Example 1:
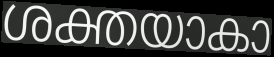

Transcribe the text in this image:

ശക്തയാകാ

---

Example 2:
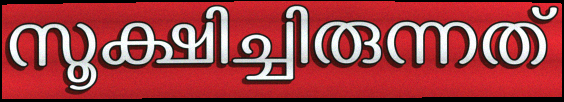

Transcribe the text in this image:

സൂക്ഷിച്ചിരുന്നത്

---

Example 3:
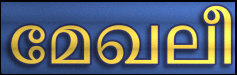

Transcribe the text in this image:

മേഖലീ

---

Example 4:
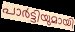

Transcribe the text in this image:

പാർട്ടിയുമായി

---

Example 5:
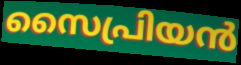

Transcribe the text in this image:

സൈപ്രിയൻ